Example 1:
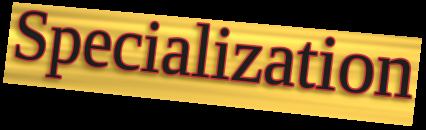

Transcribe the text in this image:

Specialization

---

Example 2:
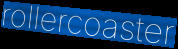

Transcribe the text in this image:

rollercoaster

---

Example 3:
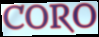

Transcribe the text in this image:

CORO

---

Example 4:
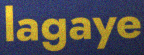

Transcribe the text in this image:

lagaye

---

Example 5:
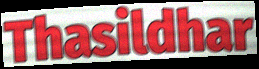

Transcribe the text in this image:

Thasildhar